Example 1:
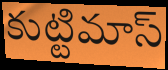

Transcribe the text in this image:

కుట్టిమాస్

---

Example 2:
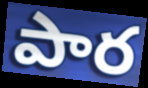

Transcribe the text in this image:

పార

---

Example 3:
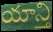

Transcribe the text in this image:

యాన్తి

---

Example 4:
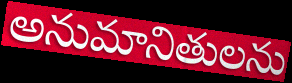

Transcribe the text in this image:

అనుమానితులను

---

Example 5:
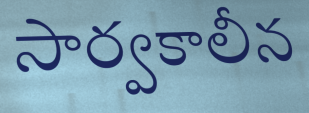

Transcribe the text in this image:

సార్వకాలీన